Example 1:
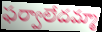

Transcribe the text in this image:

ఫర్వాలేదమ్మా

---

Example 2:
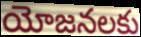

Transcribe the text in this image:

యోజనలకు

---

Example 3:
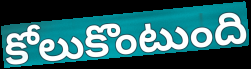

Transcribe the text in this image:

కోలుకొంటుంది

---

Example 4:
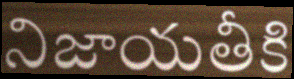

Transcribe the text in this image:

నిజాయతీకి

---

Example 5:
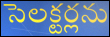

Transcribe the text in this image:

సెలక్టర్లను